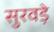
सुरवड़े